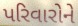
પરિવારોને